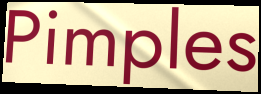
Pimples